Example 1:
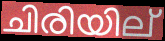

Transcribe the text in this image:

ചിരിയില്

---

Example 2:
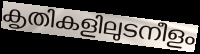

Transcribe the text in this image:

കൃതികളിലുടനീളം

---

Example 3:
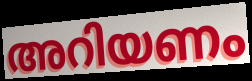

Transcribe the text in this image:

അറിയണം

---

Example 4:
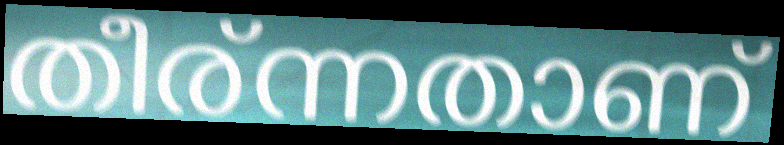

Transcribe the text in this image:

തീര്ന്നതാണ്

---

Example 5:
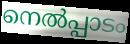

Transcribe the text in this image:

നെൽപ്പാടം